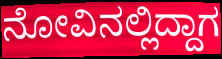
ನೋವಿನಲ್ಲಿದ್ದಾಗ